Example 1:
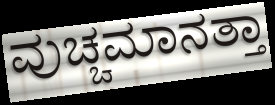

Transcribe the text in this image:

ವುಚ್ಚಮಾನತ್ತಾ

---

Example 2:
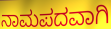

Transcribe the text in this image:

ನಾಮಪದವಾಗಿ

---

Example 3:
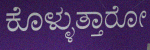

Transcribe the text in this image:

ಕೊಳ್ಳುತ್ತಾರೋ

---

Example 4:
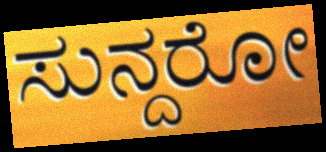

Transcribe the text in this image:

ಸುನ್ದರೋ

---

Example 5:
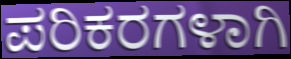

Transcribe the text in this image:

ಪರಿಕರಗಳಾಗಿ